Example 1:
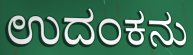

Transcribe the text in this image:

ಉದಂಕನು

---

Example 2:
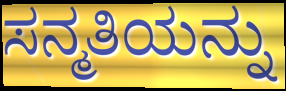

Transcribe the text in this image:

ಸನ್ಮತಿಯನ್ನು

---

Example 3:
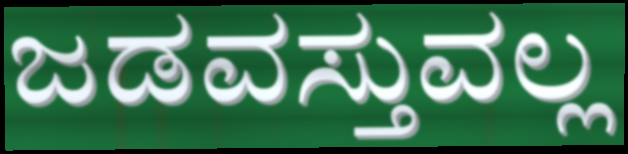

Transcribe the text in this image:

ಜಡವಸ್ತುವಲ್ಲ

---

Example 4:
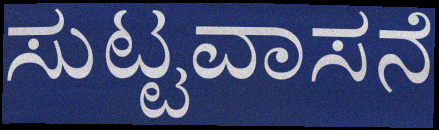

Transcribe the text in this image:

ಸುಟ್ಟವಾಸನೆ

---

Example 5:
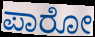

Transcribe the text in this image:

ಪಾರೋ